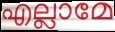
എല്ലാമേ